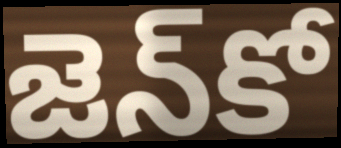
జెన్‌కో